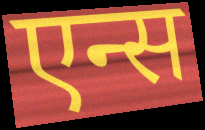
एन्स